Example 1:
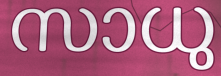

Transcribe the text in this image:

സാധു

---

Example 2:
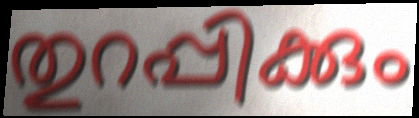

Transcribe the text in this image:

തുറപ്പിക്കും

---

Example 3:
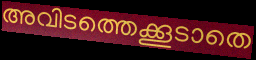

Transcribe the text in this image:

അവിടത്തെക്കൂടാതെ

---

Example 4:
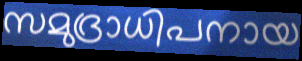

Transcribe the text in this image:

സമുദ്രാധിപനായ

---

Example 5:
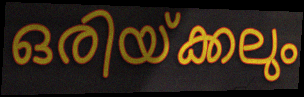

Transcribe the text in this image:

ഒരിയ്‌ക്കലും